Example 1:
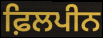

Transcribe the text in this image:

ਫ਼ਿਲਪੀਨ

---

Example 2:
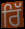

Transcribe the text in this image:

ਰਿੱ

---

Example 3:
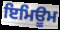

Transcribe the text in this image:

ਇਮਿਊਮ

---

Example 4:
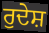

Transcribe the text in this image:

ਰੁਦੇਸ਼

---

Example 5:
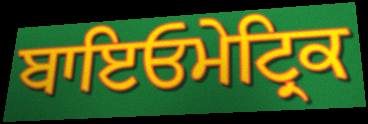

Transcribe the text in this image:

ਬਾਇਓਮੇਟ੍ਰਿਕ